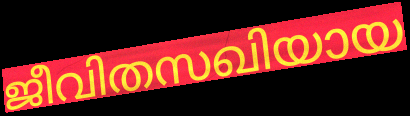
ജീവിതസഖിയായ